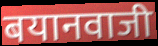
बयानवाजी